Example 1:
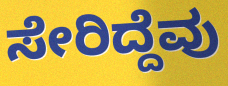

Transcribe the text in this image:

ಸೇರಿದ್ದೆವು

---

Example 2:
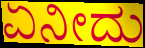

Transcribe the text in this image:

ಏನೀದು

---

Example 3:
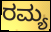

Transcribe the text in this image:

ರಮ್ಯ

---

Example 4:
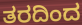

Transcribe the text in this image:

ತರದಿಂದ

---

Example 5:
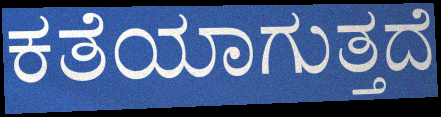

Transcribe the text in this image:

ಕತೆಯಾಗುತ್ತದೆ